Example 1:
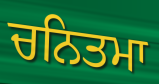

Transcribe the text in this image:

ਚਨਿਤਮਾ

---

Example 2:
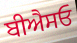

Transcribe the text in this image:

ਬੀਐਸਓ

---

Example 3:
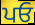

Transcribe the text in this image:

ਪਓ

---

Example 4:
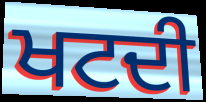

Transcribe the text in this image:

ਖਟਦੀ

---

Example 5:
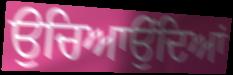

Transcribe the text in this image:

ਉਚਿਆਉਂਦਿਆਂ